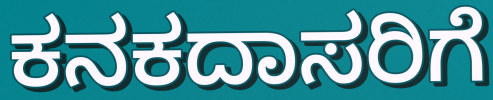
ಕನಕದಾಸರಿಗೆ